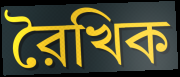
রৈখিক